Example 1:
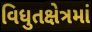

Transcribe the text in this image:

વિધુતક્ષેત્રમાં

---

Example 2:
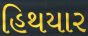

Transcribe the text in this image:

હિથયાર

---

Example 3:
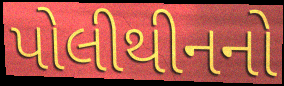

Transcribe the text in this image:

પોલીથીનનો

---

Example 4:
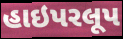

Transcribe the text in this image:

હાઇપરલૂપ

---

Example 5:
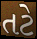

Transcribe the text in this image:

તટે